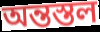
অন্তস্তল